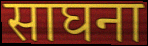
साघना